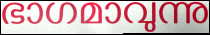
ഭാഗമാവുന്നു